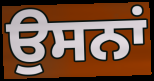
ਉਸਨਾਂ